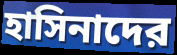
হাসিনাদের